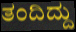
ತಂದಿದ್ದು